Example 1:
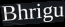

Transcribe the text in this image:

Bhrigu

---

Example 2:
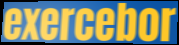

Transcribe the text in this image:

exercebor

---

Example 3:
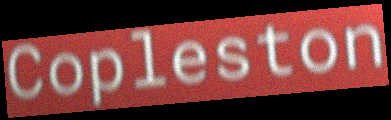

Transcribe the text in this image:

Copleston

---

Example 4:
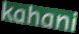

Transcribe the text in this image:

kahani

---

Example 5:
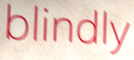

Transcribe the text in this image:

blindly